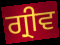
ਗ੍ਰੀਵ